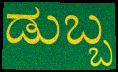
ಡುಬ್ಬ